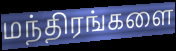
மந்திரங்களை